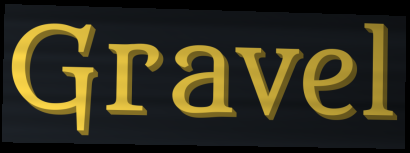
Gravel